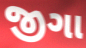
જીગા